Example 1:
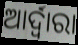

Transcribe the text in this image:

ଆର୍ଦ୍ୱାରା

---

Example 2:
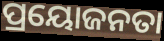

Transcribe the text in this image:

ପ୍ରୟୋଜନତା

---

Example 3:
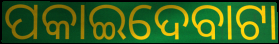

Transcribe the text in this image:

ପକାଇଦେବାଟା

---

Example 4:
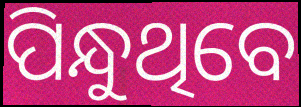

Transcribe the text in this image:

ପିନ୍ଧୁଥିବେ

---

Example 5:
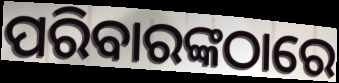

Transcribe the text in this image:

ପରିବାରଙ୍କଠାରେ